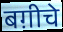
बग़ीचे